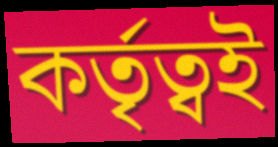
কর্তৃত্বই